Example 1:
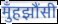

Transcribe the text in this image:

मुँहझौंसी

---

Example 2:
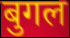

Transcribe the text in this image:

बुगल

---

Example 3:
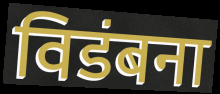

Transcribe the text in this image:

विडंबना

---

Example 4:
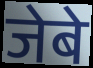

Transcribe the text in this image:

जेबे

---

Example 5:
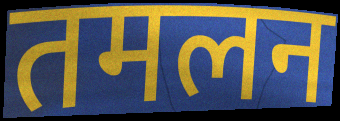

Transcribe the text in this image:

तमलन